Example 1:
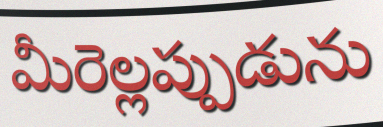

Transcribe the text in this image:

మీరెల్లప్పుడును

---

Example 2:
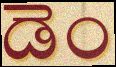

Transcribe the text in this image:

డెం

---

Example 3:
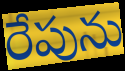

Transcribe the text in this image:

రేపును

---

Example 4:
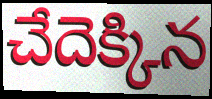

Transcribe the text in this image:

చేదెక్కిన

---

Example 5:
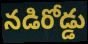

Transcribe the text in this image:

నడిరోడ్డు